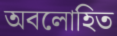
অবলোহিত